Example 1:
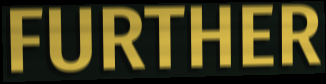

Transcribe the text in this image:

FURTHER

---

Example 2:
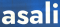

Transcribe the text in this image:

asali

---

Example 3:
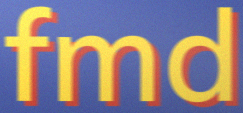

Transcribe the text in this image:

fmd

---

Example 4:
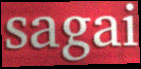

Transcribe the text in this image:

sagai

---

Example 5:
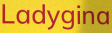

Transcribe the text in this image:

Ladygina